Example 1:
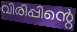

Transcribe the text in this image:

വിരിപ്പിന്റെ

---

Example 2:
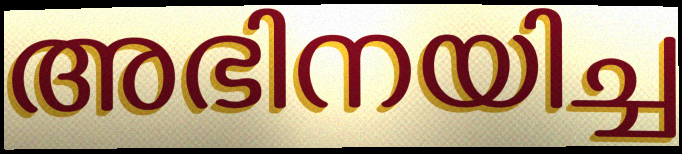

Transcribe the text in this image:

അഭിനയിച്ച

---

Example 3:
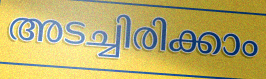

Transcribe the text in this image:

അടച്ചിരിക്കാം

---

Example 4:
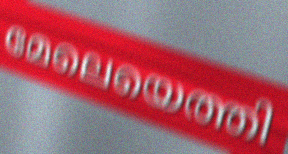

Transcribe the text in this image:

മേലെയെത്തി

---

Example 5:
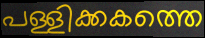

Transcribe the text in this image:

പള്ളിക്കകത്തെ